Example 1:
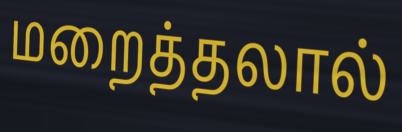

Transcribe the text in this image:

மறைத்தலால்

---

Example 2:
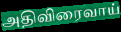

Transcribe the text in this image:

அதிவிரைவாய்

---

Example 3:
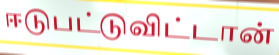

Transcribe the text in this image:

ஈடுபட்டுவிட்டான்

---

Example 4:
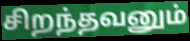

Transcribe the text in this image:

சிறந்தவனும்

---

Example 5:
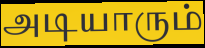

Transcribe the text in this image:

அடியாரும்